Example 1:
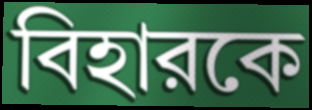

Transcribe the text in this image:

বিহারকে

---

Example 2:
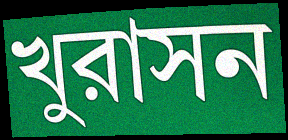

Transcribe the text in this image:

খুরাসন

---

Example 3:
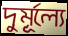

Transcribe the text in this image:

দুর্মূল্যে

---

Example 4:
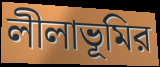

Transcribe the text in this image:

লীলাভূমির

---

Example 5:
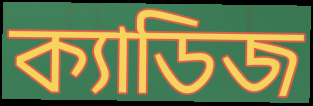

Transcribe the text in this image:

ক্যাডিজ